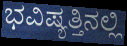
ಭವಿಷ್ಯತ್ತಿನಲ್ಲಿ